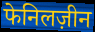
फेनिलज़ीन